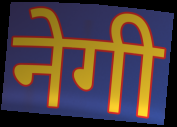
नेगी